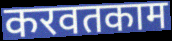
करवतकाम